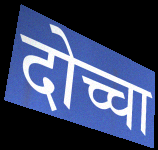
दोच्चा